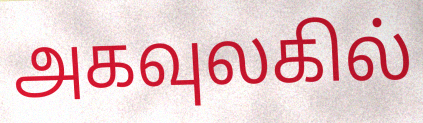
அகவுலகில்